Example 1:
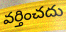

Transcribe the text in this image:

వర్తించదు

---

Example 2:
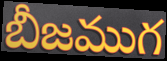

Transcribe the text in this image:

బీజముగ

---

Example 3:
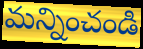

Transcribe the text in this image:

మన్నించండి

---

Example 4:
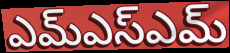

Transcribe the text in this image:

ఎమ్ఎస్ఎమ్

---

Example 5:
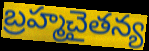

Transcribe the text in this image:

బ్రహ్మచైతన్య